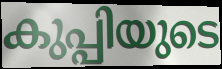
കുപ്പിയുടെ